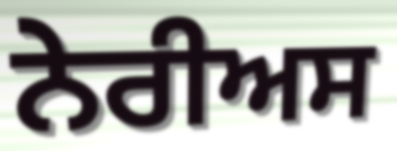
ਨੇਰੀਅਸ